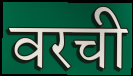
वरची